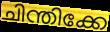
ചിന്തിക്കേ